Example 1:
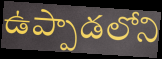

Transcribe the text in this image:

ఉప్పాడలోని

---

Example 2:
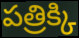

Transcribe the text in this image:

పత్రిక్కి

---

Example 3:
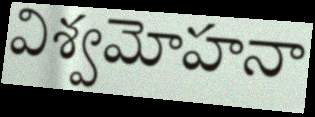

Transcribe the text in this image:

విశ్వమోహనా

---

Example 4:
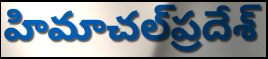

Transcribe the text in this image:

హిమాచల్‌ప్రదేశ్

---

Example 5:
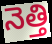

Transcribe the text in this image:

నెత్తి